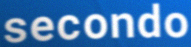
secondo